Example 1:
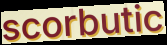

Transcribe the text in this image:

scorbutic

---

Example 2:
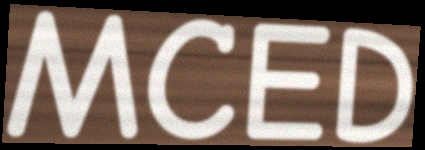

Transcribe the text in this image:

MCED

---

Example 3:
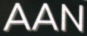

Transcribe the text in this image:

AAN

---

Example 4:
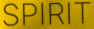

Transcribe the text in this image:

SPIRIT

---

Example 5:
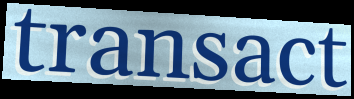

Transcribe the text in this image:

transact